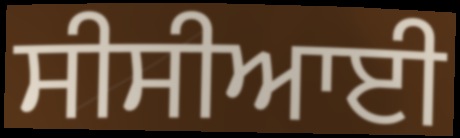
ਸੀਸੀਆਈ